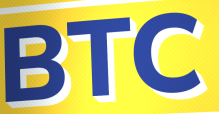
BTC